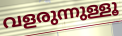
വളരുന്നുള്ളൂ